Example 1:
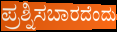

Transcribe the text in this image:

ಪ್ರಶ್ನಿಸಬಾರದೆಂದು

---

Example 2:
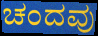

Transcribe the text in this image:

ಚಂದವು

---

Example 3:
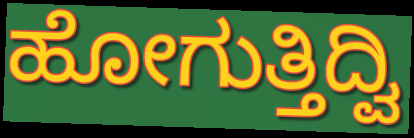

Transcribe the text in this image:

ಹೋಗುತ್ತಿದ್ವಿ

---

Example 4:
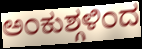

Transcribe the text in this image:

ಅಂಕುಶ್ಗಳಿಂದ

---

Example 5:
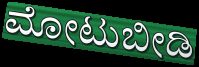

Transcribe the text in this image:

ಮೋಟುಬೀಡಿ